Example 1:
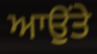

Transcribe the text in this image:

ਆਉਂਤੇ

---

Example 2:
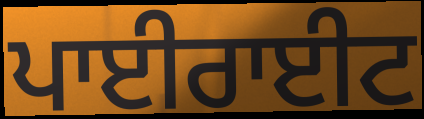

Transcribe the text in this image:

ਪਾਈਰਾਈਟ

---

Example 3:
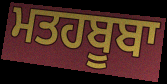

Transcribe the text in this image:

ਮਤਹਬੂਬਾ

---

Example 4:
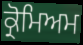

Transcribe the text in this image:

ਕ੍ਰੋਮਿਅਮ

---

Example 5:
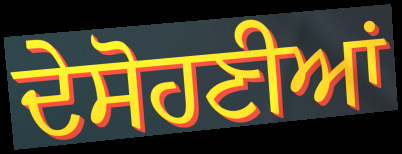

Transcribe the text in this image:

ਦੇਸੋਹਣੀਆਂ